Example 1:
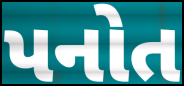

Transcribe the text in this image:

પનોત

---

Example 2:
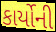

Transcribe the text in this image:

કાર્યોની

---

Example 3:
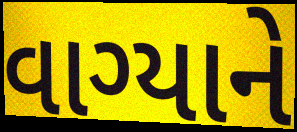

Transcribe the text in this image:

વાગ્યાને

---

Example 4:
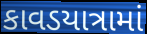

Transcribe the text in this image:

કાવડયાત્રામાં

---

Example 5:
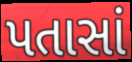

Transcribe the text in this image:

પતાસાં